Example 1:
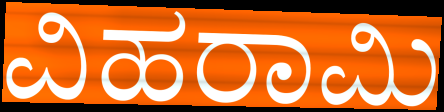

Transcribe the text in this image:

ವಿಹರಾಮಿ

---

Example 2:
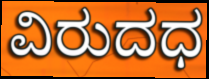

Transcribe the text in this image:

ವಿರುದಧ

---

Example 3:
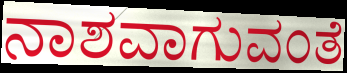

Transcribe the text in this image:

ನಾಶವಾಗುವಂತೆ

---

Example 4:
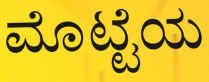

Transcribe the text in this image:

ಮೊಟ್ಟೆಯ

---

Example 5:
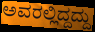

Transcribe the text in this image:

ಅವರಲ್ಲಿದ್ದದ್ದು